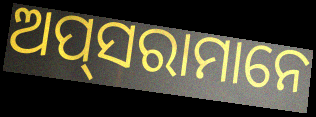
ଅପ୍‌ସରାମାନେ